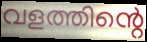
വളത്തിന്റെ